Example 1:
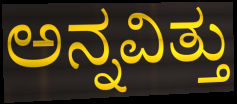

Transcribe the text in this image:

ಅನ್ನವಿತ್ತು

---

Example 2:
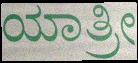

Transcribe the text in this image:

ಯಾತ್ರೀ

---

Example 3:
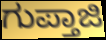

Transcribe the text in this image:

ಗುಪ್ತಾಜಿ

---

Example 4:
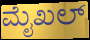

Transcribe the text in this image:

ಮೈಖಲ್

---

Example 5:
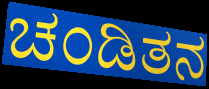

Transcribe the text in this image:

ಚಂಡಿತನ